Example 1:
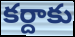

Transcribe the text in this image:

కర్దాకు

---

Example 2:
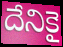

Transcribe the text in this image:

దేనికై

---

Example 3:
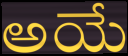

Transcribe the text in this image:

అయే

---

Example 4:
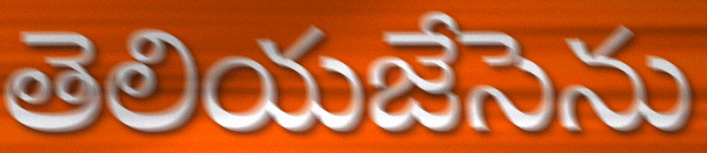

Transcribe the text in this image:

తెలియజేసెను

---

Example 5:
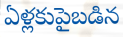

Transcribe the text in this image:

ఏళ్లకుపైబడిన